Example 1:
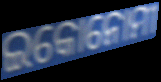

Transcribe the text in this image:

ଇକୋନୋମୀ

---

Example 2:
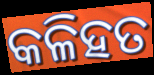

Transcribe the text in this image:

କଳିହତ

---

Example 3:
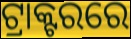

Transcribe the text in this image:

ଟ୍ରାକ୍ଟରରେ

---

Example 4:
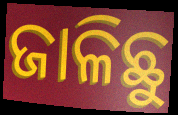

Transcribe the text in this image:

ଜାଳିଛୁ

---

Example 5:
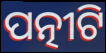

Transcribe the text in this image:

ପତ୍ନୀଟି